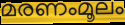
മരണംമൂലം